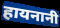
हायनानी